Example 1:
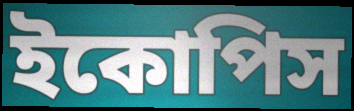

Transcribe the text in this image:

ইকোপিস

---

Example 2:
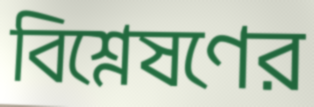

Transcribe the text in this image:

বিশ্নেষণের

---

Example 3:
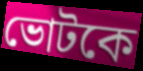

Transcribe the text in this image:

ভোটকে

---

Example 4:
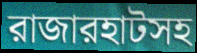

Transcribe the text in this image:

রাজারহাটসহ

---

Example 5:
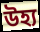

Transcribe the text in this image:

উহ্য